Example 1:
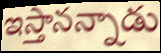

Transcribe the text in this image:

ఇస్తానన్నాడు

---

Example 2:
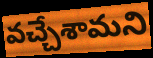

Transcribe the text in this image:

వచ్చేశామని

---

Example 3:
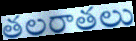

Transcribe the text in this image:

తలరాతలు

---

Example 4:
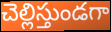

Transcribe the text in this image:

చెల్లిస్తుండగా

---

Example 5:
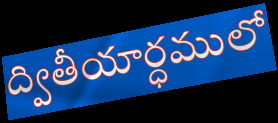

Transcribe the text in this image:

ద్వితీయార్ధములో